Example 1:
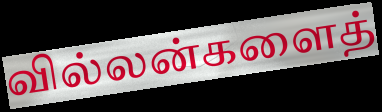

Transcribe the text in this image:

வில்லன்களைத்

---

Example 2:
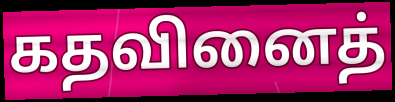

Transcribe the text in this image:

கதவினைத்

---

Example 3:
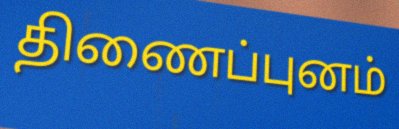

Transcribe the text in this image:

திணைப்புனம்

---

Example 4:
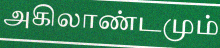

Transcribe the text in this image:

அகிலாண்டமும்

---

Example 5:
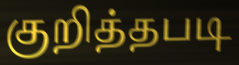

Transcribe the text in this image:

குறித்தபடி